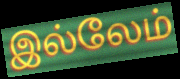
இல்லேம்